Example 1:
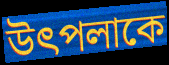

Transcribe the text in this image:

উৎপলাকে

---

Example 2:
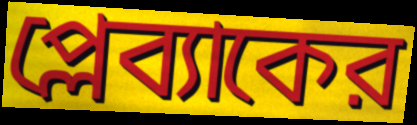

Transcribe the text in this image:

প্লেব্যাকের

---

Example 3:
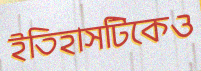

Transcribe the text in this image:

ইতিহাসটিকেও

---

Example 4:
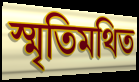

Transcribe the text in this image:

স্মৃতিমথিত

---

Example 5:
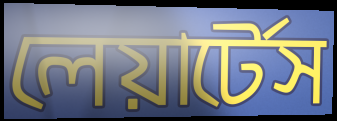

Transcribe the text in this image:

লেয়ার্টেস